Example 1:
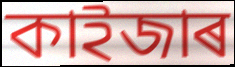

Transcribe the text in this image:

কাইজাৰ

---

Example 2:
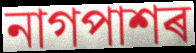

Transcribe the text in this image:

নাগপাশৰ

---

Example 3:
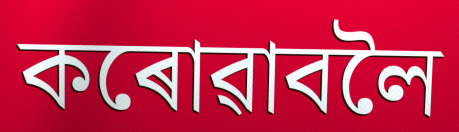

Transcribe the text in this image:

কৰোৱাবলৈ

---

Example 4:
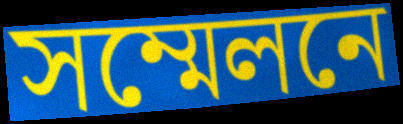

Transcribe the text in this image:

সম্মেলনে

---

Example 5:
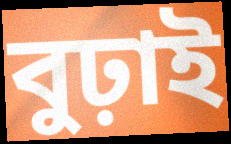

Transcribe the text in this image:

বুঢ়াই